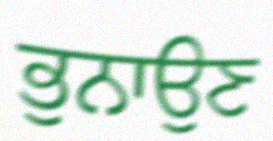
ਭੁਨਾਉਣ